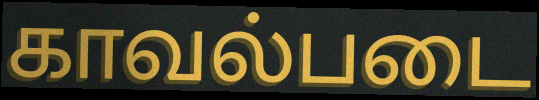
காவல்படை